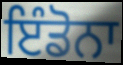
ਇੰਡੋਨਾ